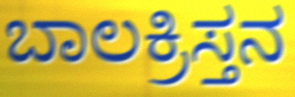
ಬಾಲಕ್ರಿಸ್ತನ